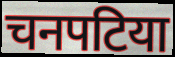
चनपटिया